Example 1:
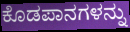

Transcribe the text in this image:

ಕೊಡಪಾನಗಳನ್ನು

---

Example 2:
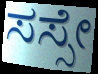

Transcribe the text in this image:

ಸಸ್ಸೇ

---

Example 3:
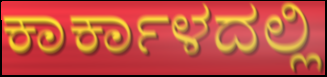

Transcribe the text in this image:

ಕಾರ್ಕಾಳದಲ್ಲಿ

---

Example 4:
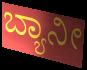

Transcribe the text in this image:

ಬ್ಯಾನೀ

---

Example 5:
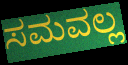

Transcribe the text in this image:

ಸಮವಲ್ಲ